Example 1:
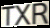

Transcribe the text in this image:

TXR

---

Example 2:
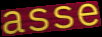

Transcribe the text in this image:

asse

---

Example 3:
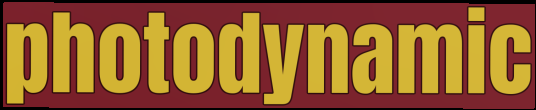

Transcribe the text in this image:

photodynamic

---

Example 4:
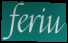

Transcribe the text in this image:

feriu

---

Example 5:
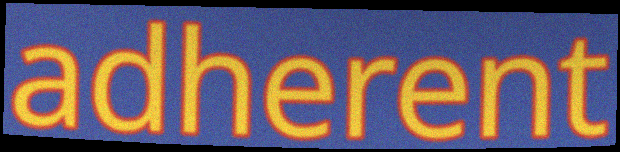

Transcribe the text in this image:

adherent